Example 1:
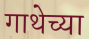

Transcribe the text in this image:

गाथेच्या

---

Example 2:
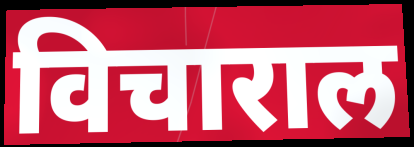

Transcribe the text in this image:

विचाराल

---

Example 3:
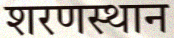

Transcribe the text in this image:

शरणस्थान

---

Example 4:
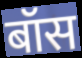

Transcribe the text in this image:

बॉस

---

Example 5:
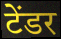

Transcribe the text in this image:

टेंडर